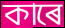
কাৰে